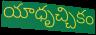
యాధృచ్చికం